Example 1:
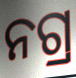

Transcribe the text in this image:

ନଗ୍ର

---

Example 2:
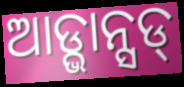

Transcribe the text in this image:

ଆଡ୍ଭାନ୍ସଡ୍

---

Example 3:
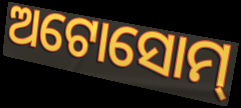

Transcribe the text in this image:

ଅଟୋସୋମ୍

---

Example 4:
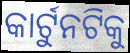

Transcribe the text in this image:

କାର୍ଟୁନଟିକୁ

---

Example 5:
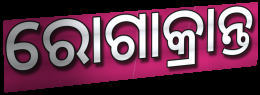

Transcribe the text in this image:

ରୋଗାକ୍ରାନ୍ତ